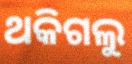
ଥକିଗଲୁ